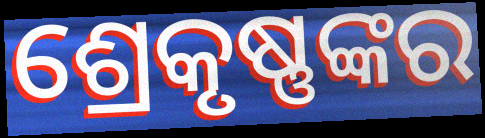
ଶ୍ରେକୃଷ୍ଣଙ୍କର